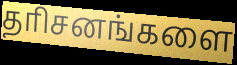
தரிசனங்களை